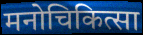
मनोचिकित्सा